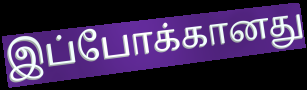
இப்போக்கானது